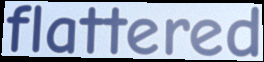
flattered